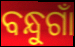
ବନ୍ଧୁଗାଁ